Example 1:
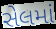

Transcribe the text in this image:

સેલમાં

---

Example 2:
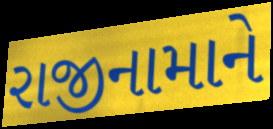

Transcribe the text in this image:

રાજીનામાને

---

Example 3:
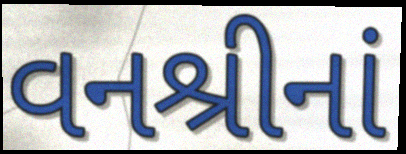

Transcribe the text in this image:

વનશ્રીનાં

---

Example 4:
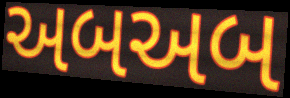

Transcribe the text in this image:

અબઅબ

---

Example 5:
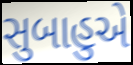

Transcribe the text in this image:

સુબાહુએ